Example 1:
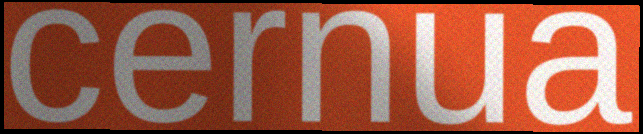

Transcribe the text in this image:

cernua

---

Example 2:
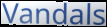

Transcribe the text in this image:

Vandals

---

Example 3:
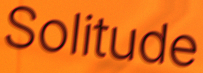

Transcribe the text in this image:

Solitude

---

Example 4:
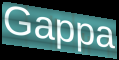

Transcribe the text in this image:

Gappa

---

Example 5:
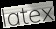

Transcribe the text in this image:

latex